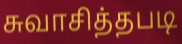
சுவாசித்தபடி